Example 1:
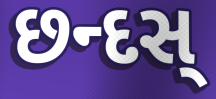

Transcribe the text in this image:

છન્દસ્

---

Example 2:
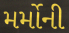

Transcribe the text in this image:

મર્મોની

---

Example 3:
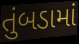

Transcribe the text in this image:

તુંબડામાં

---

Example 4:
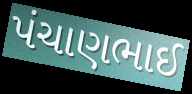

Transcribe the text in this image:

પંચાણભાઈ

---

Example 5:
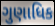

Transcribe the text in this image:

ગુણાધિક